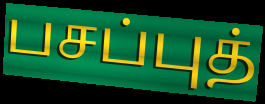
பசப்புத்